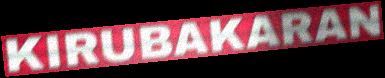
KIRUBAKARAN